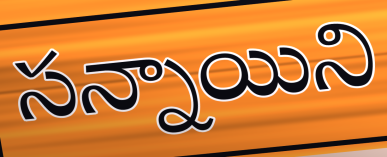
సన్నాయిని